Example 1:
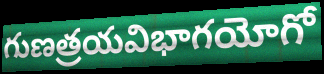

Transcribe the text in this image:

గుణత్రయవిభాగయోగో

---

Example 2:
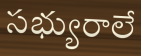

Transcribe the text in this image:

సభ్యురాలే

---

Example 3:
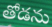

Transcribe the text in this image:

తోడను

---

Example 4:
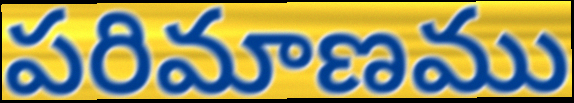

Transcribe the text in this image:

పరిమాణము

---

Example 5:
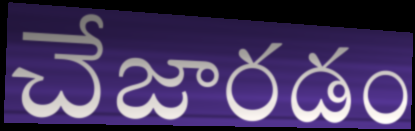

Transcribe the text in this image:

చేజారడం